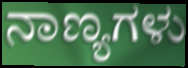
ನಾಣ್ಯಗಳು